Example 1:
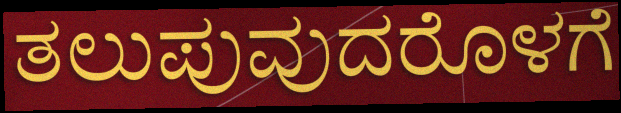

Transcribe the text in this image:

ತಲುಪುವುದರೊಳಗೆ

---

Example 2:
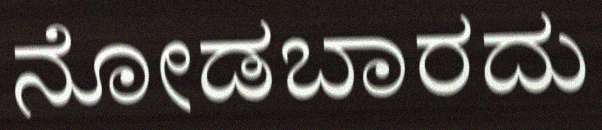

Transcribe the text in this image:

ನೋಡಬಾರದು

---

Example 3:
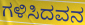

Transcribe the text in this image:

ಗಳಿಸಿದವನ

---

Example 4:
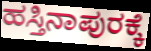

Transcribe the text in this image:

ಹಸ್ತಿನಾಪುರಕ್ಕೆ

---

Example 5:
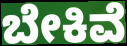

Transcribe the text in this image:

ಬೇಕಿವೆ